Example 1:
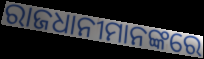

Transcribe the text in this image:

ରାଜଧାନୀମାନଙ୍କରେ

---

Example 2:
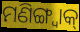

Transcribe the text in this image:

ମଣିଙ୍ଗ୍ୱାକ୍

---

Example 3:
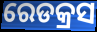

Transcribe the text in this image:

ରେଡକ୍ରସ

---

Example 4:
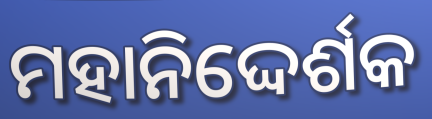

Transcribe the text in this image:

ମହାନିଦ୍ଦେର୍ଶକ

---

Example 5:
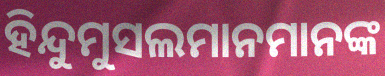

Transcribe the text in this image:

ହିନ୍ଦୁମୁସଲମାନମାନଙ୍କ